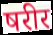
षरीर